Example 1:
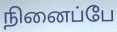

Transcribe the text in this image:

நினைப்பே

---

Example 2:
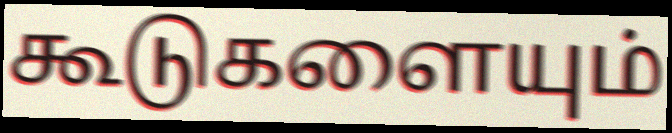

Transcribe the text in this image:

கூடுகளையும்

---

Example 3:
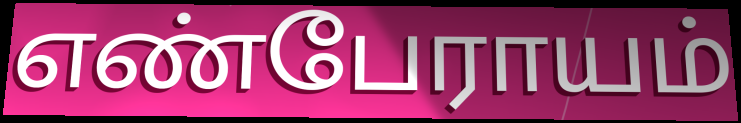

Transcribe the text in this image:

எண்பேராயம்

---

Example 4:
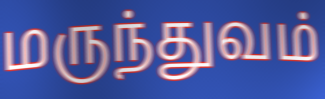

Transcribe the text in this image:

மருந்துவம்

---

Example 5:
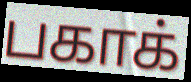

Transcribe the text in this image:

பகாக்